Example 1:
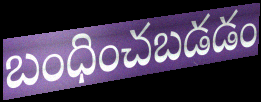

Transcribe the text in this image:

బంధించబడడం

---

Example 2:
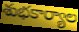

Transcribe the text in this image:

శుభకార్యాల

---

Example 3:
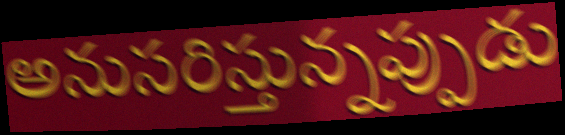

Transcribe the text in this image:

అనుసరిస్తున్నప్పుడు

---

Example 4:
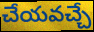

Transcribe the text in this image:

చేయవచ్చే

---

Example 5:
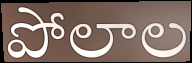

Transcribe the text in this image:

పోలాల